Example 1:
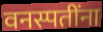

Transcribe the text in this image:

वनस्‍पतींना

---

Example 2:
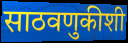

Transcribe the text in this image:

साठवणुकीशी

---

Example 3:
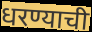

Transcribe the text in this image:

धरण्याची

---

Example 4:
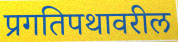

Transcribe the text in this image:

प्रगतिपथावरील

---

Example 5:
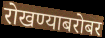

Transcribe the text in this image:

रोखण्याबरोबर